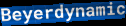
Beyerdynamic